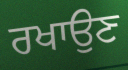
ਰਖਾਉਣ